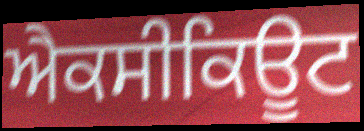
ਐਕਸੀਕਿਊਟ